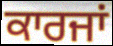
ਕਾਰਜਾਂ